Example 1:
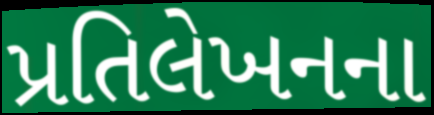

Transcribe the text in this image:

પ્રતિલેખનના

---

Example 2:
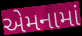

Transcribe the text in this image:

એમનામાં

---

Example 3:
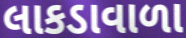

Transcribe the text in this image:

લાકડાવાળા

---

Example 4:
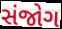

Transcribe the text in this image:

સંજોગ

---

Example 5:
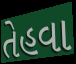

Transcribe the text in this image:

તેહવા